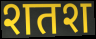
शतश